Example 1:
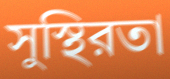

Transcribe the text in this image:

সুস্থিরতা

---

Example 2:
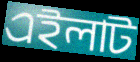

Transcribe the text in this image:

এইলাট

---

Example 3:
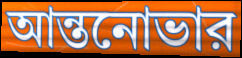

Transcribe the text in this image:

আন্তনোভার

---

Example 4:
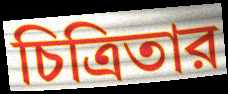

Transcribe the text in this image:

চিত্রিতার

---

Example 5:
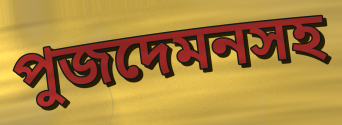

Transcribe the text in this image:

পুজদেমনসহ